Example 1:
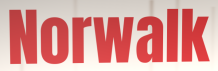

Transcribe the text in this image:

Norwalk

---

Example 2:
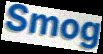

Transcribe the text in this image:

Smog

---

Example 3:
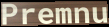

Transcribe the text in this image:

Premnu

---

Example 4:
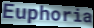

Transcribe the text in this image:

Euphoria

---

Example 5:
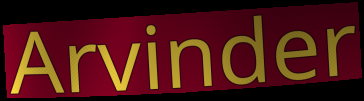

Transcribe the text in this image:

Arvinder